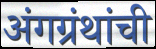
अंगग्रंथांची